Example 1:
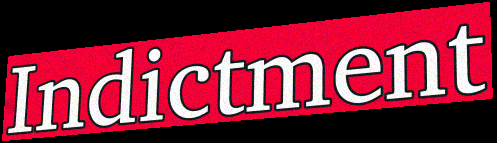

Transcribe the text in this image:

Indictment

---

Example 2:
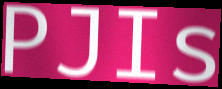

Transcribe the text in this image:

PJIs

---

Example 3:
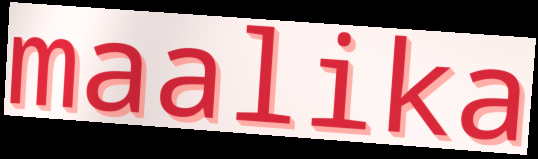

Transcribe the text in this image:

maalika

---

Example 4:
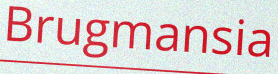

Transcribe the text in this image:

Brugmansia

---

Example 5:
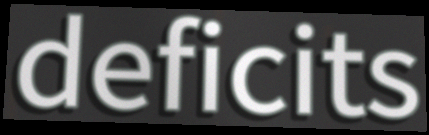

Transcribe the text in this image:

deficits